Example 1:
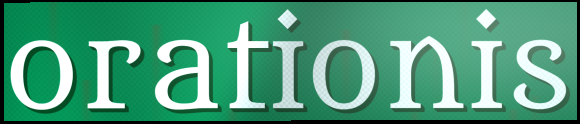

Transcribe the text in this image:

orationis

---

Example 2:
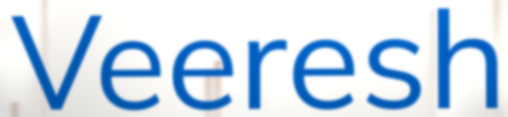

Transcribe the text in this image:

Veeresh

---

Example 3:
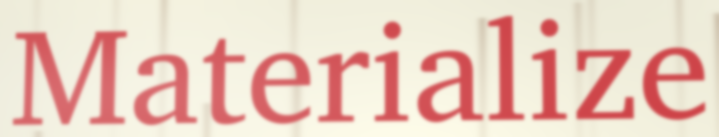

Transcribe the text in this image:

Materialize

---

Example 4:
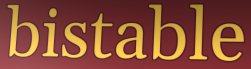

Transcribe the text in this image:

bistable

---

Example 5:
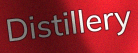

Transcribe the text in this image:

Distillery